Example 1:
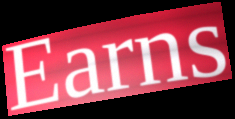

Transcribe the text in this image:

Earns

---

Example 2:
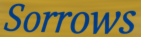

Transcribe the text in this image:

Sorrows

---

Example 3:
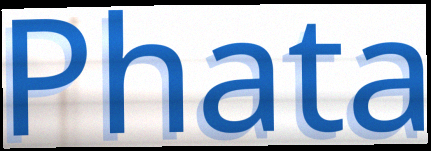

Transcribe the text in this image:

Phata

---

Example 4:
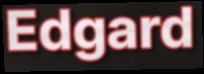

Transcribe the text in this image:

Edgard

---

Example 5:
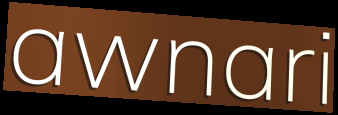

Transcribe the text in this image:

awnari